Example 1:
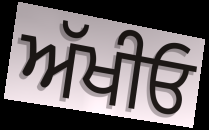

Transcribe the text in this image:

ਅੱਖੀਓ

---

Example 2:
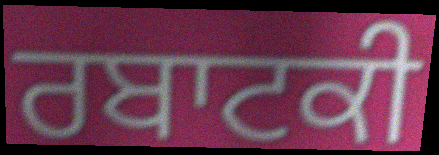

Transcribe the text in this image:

ਰਬਾਟਕੀ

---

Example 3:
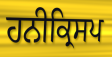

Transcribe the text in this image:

ਹਨੀਕ੍ਰਿਸਪ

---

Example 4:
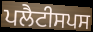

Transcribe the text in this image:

ਪਲੈਟੀਸਪਸ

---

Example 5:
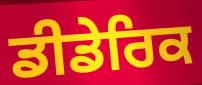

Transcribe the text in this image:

ਡੀਡੇਰਿਕ